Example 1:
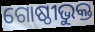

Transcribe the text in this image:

ଗୋଷ୍ଠୀଭୁକ୍ତ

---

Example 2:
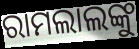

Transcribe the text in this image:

ରାମଲାଲଙ୍କୁ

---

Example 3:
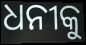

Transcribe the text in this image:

ଧନୀକୁ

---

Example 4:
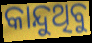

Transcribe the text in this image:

କାନ୍ଦୁଥିବୁ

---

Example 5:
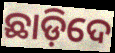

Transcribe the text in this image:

ଛାଡ଼ିଦେ